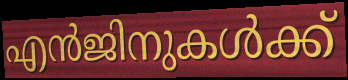
എൻജിനുകൾക്ക്